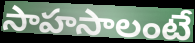
సాహసాలంటే